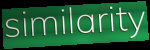
similarity